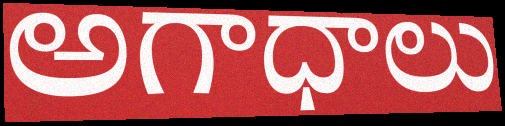
అగాధాలు